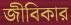
জীবিকার